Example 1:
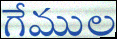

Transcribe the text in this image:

గేముల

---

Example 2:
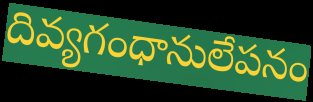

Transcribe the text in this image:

దివ్యగంధానులేపనం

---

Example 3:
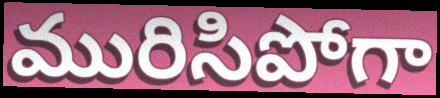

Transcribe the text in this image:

మురిసిపోగా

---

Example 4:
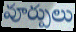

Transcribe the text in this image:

వూర్పులు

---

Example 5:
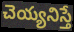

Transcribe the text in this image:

చెయ్యనిస్తే